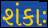
શંકાઃ